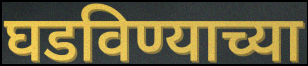
घडविण्याच्या